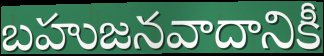
బహుజనవాదానికీ